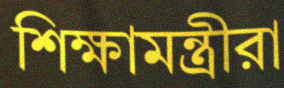
শিক্ষামন্ত্রীরা